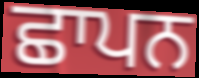
ਛਾਪਨ